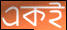
একই